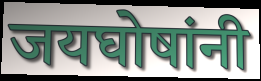
जयघोषांनी